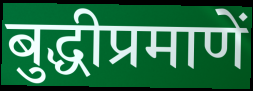
बुद्धीप्रमाणें